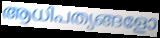
ആധിപത്യങ്ങളോ